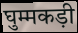
घुम्मकड़ी